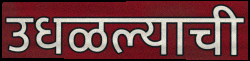
उधळल्याची